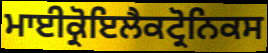
ਮਾਈਕ੍ਰੋਇਲੈਕਟ੍ਰੋਨਿਕਸ